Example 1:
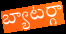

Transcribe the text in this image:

బ్యాటర్గా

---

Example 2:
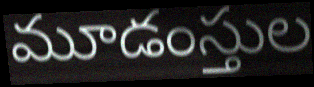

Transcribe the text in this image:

మూడంస్తుల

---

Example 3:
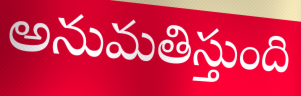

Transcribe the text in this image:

అనుమతిస్తుంది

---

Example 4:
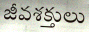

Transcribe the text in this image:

జీవశక్తులు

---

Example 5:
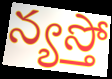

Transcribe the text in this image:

న్యస్తో